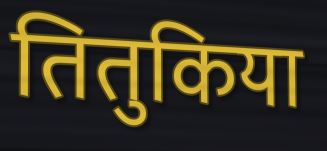
तितुकिया